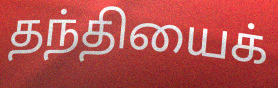
தந்தியைக்